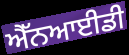
ਐੱਨਆਈਡੀ